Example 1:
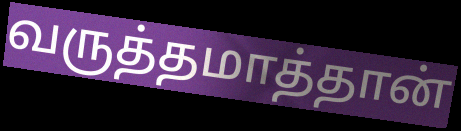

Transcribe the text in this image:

வருத்தமாத்தான்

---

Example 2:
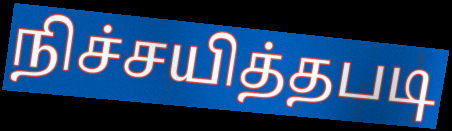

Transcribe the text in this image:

நிச்சயித்தபடி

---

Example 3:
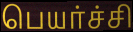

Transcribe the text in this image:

பெயர்ச்சி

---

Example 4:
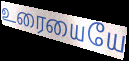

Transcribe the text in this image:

உரையையே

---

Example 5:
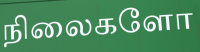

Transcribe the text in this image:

நிலைகளோ